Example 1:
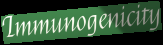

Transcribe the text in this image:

Immunogenicity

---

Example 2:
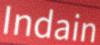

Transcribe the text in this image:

Indain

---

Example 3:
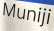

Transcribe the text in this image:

Muniji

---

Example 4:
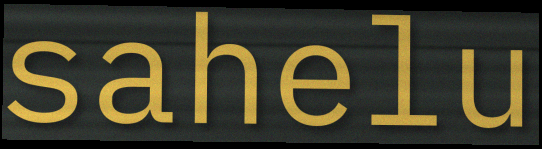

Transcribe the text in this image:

sahelu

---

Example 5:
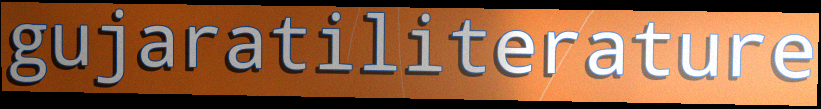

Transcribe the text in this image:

gujaratiliterature